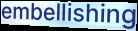
embellishing